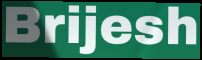
Brijesh